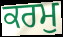
ਕਰਮੁ